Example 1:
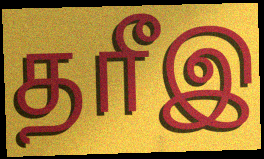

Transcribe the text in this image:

தரீஇ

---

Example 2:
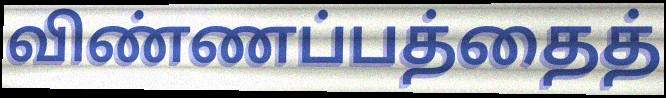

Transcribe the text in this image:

விண்ணப்பத்தைத்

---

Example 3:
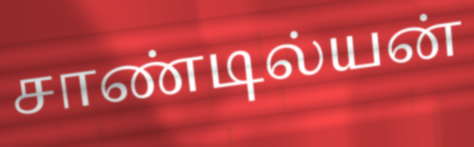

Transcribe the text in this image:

சாண்டில்யன்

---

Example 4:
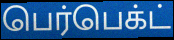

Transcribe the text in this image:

பெர்பெக்ட்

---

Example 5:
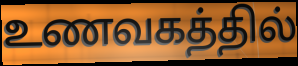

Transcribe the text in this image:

உணவகத்தில்